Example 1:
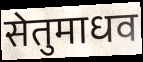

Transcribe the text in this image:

सेतुमाधव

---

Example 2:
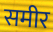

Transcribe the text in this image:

समीर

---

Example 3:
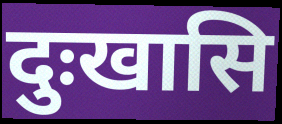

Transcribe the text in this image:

दुःखासि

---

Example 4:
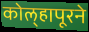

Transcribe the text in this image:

कोल्हापूरने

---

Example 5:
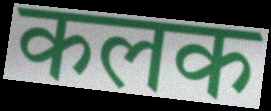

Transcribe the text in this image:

कलक